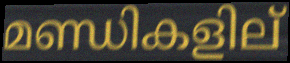
മണ്ഡികളില്